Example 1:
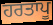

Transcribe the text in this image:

ਹਰਤਾਪੂ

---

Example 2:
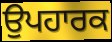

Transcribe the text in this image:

ਉਪਹਾਰਕ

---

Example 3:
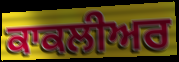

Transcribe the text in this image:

ਕਾਕਲੀਅਰ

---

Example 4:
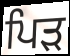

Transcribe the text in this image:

ਪਿੜ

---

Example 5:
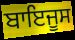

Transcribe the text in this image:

ਬਾਇਜੂਸ